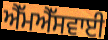
ਐੱਮਐੱਸਵਾਈ